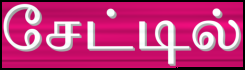
சேட்டில்